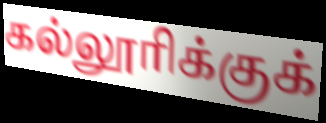
கல்லூரிக்குக்